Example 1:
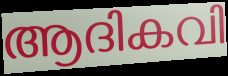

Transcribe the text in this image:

ആദികവി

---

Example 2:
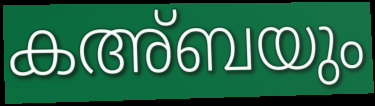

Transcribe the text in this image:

കഅ്ബയും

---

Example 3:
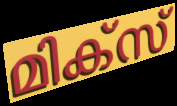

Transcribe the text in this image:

മിക്‌സ്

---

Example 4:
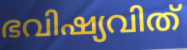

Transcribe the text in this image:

ഭവിഷ്യവിത്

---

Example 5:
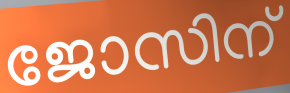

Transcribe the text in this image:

ജോസിന്